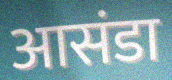
आसंडा